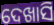
ଦେଖାସି